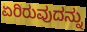
ಏರಿರುವುದನ್ನು